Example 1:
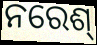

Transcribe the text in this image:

ନରେଶ୍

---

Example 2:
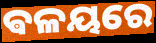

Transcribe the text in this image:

ଵଳୟରେ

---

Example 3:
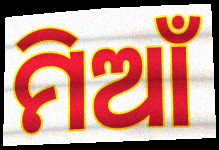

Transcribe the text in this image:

ମିଆଁ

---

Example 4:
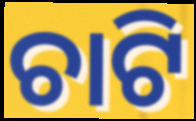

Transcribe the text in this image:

ଚାଟି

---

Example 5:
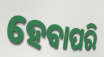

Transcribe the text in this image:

ହେବାପରି